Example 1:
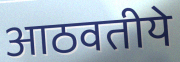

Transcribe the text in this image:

आठवतीये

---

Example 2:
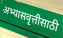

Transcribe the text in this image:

अभ्यासवृत्तीसाठी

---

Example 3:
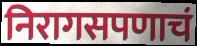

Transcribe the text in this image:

निरागसपणाचं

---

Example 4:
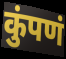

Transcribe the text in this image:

कुंपणं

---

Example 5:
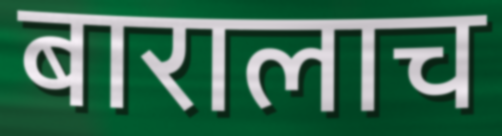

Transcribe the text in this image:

बारालाच